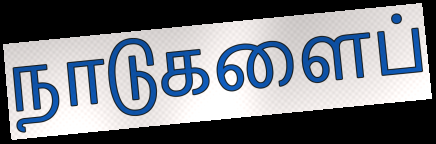
நாடுகளைப்